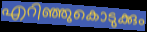
എറിഞ്ഞുകൊടുക്കും